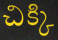
చిక్కి